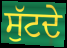
ਸੁੱਟਦੇ